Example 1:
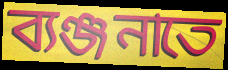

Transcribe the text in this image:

ব্যঞ্জনাতে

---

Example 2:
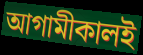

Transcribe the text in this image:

আগামীকালই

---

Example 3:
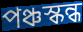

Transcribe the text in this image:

পঞ্চস্কন্ধ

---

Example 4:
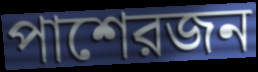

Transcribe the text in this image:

পাশেরজন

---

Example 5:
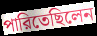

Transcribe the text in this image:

পারিতেছিলেন